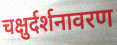
चक्षुर्दर्शनावरण